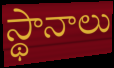
స్థానాలు